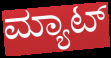
ಮ್ಯಾಟ್